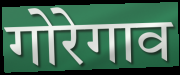
गोरेगाव